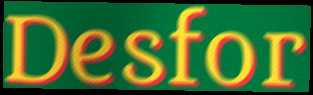
Desfor